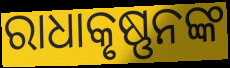
ରାଧାକୃଷ୍ଣନଙ୍କ